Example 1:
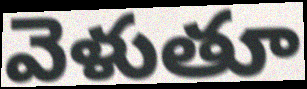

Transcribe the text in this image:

వెళుతూ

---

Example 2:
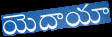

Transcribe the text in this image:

యెదాయా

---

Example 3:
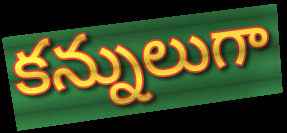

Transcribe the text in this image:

కన్నులుగా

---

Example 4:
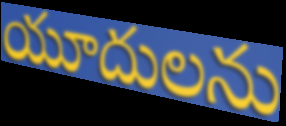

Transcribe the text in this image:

యూదులను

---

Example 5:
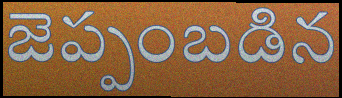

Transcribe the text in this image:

జెప్పంబడిన